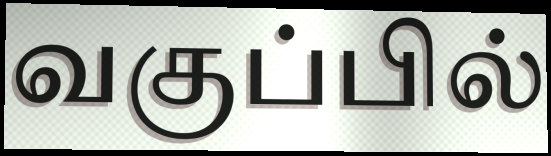
வகுப்பில்